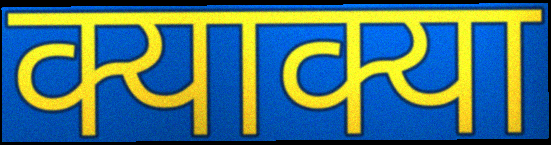
क्याक्या